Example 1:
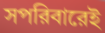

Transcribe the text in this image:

সপরিবারেই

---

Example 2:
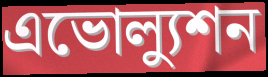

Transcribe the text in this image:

এভোল্যুশন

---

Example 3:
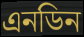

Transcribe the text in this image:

এনডিন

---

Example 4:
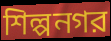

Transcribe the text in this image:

শিল্পনগর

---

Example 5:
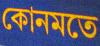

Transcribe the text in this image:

কোনমতে